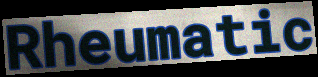
Rheumatic